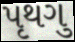
પૃથગુ